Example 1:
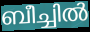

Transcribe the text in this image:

ബീച്ചിൽ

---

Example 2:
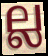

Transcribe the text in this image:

ല്ല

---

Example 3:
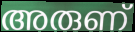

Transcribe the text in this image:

അരുണ്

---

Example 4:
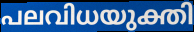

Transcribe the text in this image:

പലവിധയുക്തി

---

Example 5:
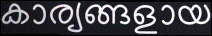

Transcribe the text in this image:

കാര്യങ്ങളായ